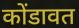
कोंडावत